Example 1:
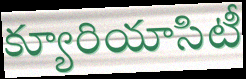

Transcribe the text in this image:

క్యూరియాసిటీ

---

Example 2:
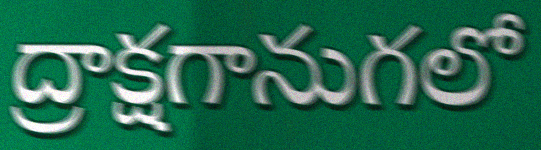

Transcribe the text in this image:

ద్రాక్షగానుగలో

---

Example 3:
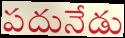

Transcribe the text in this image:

పదునేడు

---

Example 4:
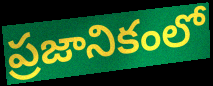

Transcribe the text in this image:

ప్రజానికంలో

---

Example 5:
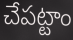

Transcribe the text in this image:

చేపట్టాం